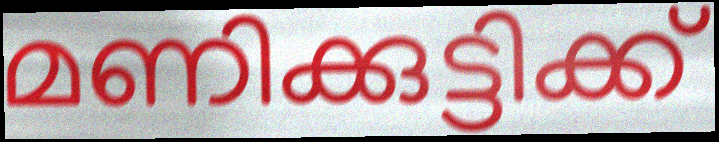
മണിക്കുട്ടിക്ക്